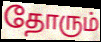
தோரும்